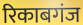
रिकाबगंज